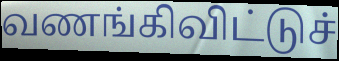
வணங்கிவிட்டுச்